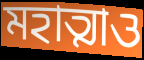
মহাত্মাও